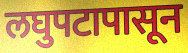
लघुपटापासून